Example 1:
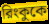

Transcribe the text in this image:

রিংকুকে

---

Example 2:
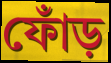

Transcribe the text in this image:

ফোঁড়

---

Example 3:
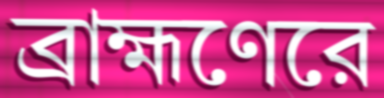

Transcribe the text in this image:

ব্রাহ্মণেরে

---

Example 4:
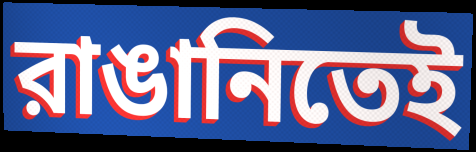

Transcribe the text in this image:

রাঙানিতেই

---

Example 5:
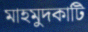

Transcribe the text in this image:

মাহমুদকাটি